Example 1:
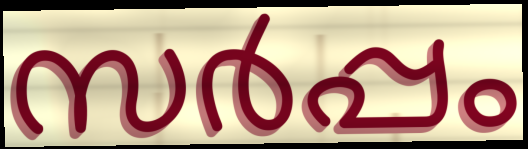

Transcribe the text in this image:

സർപ്പം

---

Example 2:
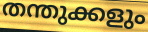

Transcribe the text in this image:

തന്തുക്കളും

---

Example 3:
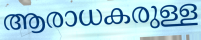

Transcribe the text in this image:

ആരാധകരുള്ള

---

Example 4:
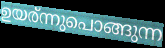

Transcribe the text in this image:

ഉയര്ന്നുപൊങ്ങുന്ന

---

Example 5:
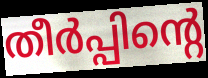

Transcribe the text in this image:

തീർപ്പിന്റെ